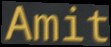
Amit